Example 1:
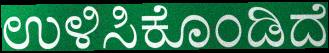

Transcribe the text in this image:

ಉಳಿಸಿಕೊಂಡಿದೆ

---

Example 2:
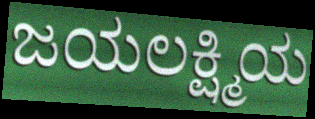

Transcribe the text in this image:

ಜಯಲಕ್ಷ್ಮಿಯ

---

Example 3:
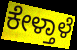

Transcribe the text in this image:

ಕೇಳ್ತಾಳೆ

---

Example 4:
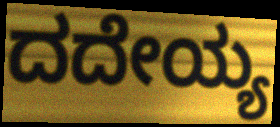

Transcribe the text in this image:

ದದೇಯ್ಯ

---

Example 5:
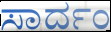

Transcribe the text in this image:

ಸಾರ್ದಂ